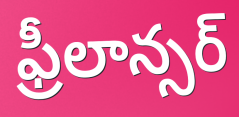
ఫ్రీలాన్సర్